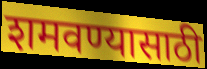
शमवण्यासाठी